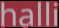
halli